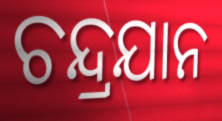
ଚନ୍ଦ୍ରଯାନ